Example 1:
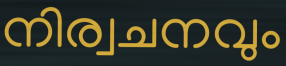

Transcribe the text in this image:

നിര്വചനവും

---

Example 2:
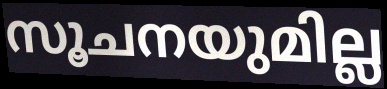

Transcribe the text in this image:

സൂചനയുമില്ല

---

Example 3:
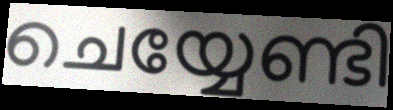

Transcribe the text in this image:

ചെയ്യേണ്ടി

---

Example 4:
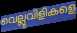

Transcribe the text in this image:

വെല്ലുവിളികളെ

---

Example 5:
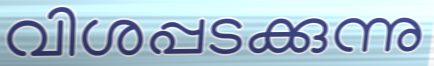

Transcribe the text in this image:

വിശപ്പടക്കുന്നു